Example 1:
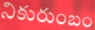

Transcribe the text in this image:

నికురుంబం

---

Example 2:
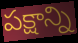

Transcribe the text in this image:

పక్షాన్ని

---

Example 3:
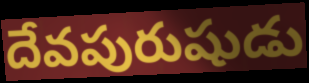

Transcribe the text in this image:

దేవపురుషుడు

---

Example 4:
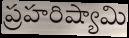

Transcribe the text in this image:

ప్రహరిష్యామి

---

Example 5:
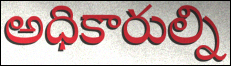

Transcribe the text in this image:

అధికారుల్ని